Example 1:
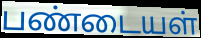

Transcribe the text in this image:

பண்டையள்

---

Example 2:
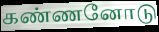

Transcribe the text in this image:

கண்ணனோடு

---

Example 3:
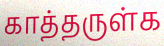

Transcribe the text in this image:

காத்தருள்க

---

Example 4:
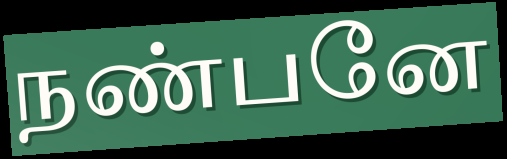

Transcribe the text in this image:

நண்பனே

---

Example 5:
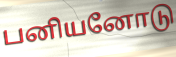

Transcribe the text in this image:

பனியனோடு